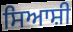
ਸਿਆਸ਼ੀ